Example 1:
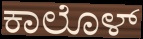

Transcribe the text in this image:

ಕಾಲೊಳ್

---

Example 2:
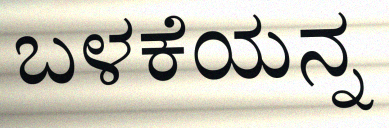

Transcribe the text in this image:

ಬಳಕೆಯನ್ನ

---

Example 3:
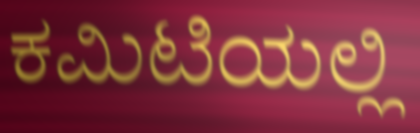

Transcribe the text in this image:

ಕಮಿಟಿಯಲ್ಲಿ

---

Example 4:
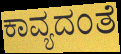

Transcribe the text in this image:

ಕಾವ್ಯದಂತೆ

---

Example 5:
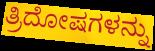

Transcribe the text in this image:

ತ್ರಿದೋಷಗಳನ್ನು